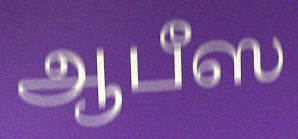
ஆபீஸ